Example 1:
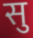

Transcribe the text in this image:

सु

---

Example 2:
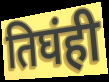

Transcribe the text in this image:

तिघंही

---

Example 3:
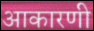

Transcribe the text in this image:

आकारणी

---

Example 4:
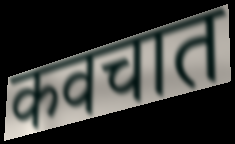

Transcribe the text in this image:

कवचात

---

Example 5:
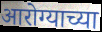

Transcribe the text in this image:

आरोग्याच्या